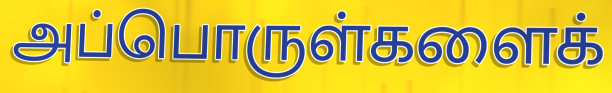
அப்பொருள்களைக்